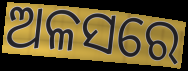
ଅଳସରେ